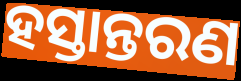
ହସ୍ତାନ୍ତରଣ